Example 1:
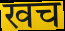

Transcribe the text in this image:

खच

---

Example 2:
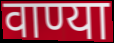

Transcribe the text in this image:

वाण्या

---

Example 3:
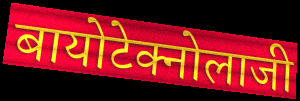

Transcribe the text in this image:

बायोटेक्नोलाजी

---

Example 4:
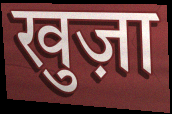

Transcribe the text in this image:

खुज़ा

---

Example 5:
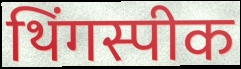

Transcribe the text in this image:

थिंगस्पीक